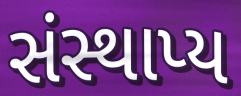
સંસ્થાપ્ય